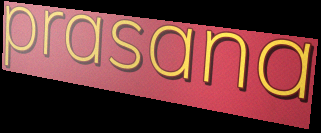
prasana